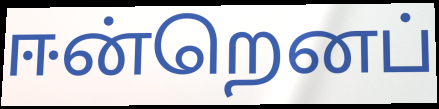
ஈன்றெனப்